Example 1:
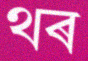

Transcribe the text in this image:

থৰ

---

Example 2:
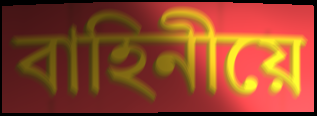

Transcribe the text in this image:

বাহিনীয়ে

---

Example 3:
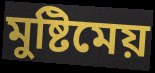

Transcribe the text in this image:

মুষ্টিমেয়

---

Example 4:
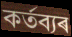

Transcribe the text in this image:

কৰ্তব্যৰ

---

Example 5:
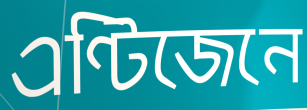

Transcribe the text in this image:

এণ্টিজেনে